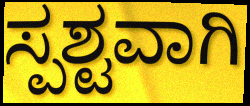
ಸ್ಪಶ್ಟವಾಗಿ